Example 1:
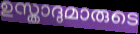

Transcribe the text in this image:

ഉസ്താദുമാരുടെ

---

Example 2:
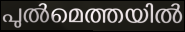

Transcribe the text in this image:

പുൽമെത്തയിൽ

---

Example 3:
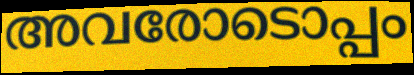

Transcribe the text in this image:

അവരോടൊപ്പം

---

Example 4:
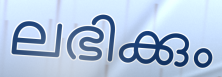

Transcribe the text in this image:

ലഭിക്കും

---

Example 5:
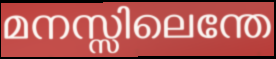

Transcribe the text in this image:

മനസ്സിലെന്തേ